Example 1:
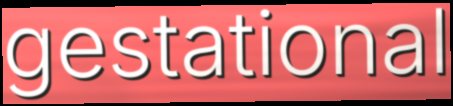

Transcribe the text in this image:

gestational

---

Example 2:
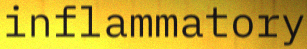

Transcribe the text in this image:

inflammatory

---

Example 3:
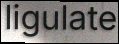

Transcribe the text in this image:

ligulate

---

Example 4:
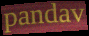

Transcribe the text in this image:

pandav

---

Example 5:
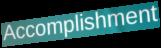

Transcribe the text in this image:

Accomplishment